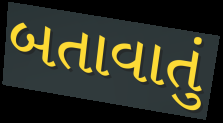
બતાવાતું